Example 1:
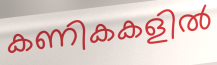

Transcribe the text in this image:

കണികകളിൽ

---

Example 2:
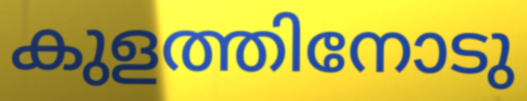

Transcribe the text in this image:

കുളത്തിനോടു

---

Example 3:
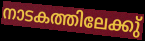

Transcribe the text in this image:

നാടകത്തിലേക്കു്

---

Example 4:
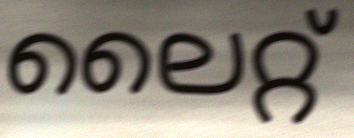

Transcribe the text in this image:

ലൈറ്റ്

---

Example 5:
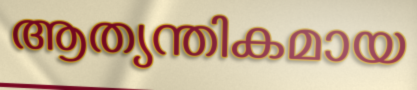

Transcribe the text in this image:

ആത്യന്തികമായ